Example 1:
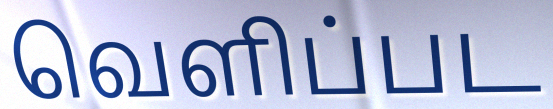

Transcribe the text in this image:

வெளிப்பட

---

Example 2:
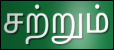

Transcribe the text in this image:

சற்றும்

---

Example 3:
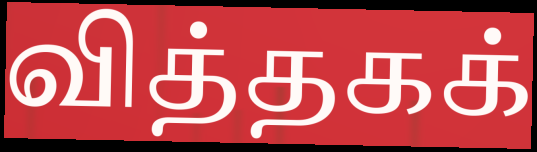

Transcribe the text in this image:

வித்தகக்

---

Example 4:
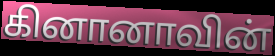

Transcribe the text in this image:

கினானாவின்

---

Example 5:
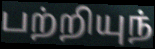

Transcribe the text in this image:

பற்றியுந்